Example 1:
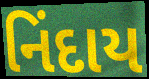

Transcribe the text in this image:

નિંદાય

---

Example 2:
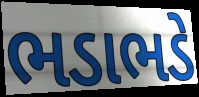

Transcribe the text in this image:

ભડાભડે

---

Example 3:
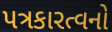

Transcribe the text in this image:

પત્રકારત્વનો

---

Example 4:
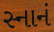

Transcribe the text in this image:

સ્નાનં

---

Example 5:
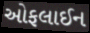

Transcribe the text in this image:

ઓફલાઈન